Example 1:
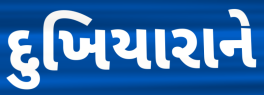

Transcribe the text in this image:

દુખિયારાને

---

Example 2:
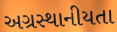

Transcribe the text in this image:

અગ્રસ્થાનીયતા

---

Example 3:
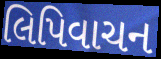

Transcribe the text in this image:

લિપિવાચન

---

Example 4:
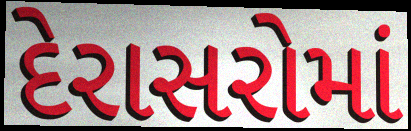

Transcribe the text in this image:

દેરાસરોમાં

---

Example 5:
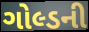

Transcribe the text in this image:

ગોલ્ડની